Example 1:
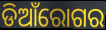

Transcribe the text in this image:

ଡିଆଁରୋଗର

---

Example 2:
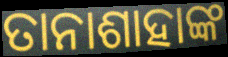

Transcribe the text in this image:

ତାନାଶାହାଙ୍କ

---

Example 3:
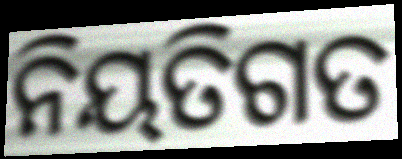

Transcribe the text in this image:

ନିୟତିଗତ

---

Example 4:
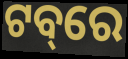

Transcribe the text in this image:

ଟବ୍‌ରେ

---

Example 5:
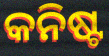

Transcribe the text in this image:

କନିଷ୍ଟ